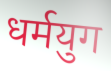
धर्मयुग